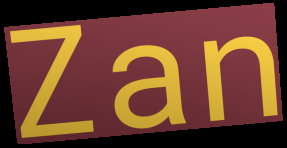
Zan